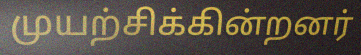
முயற்சிக்கின்றனர்